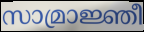
സാമ്രാജ്ഞീ